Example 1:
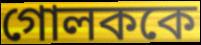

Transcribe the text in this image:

গোলককে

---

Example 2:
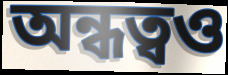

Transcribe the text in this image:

অন্ধত্বও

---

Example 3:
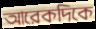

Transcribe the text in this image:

আরেকদিকে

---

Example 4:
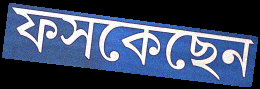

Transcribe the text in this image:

ফসকেছেন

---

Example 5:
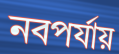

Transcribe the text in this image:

নবপর্যায়